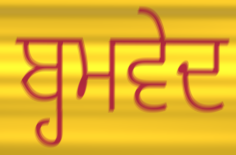
ਬ੍ਹਮਵੇਦ